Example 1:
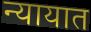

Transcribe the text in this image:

न्यायात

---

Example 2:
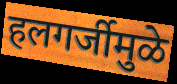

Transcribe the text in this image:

हलगर्जीमुळे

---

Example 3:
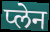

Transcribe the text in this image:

प्लेन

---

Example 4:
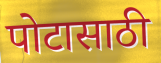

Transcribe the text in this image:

पोटासाठी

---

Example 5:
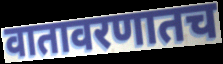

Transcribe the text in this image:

वातावरणातच